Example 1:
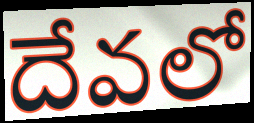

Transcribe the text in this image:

దేవలో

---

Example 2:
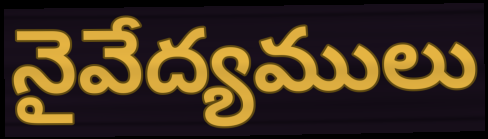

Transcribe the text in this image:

నైవేద్యములు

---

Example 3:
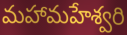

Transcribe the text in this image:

మహామహేశ్వరి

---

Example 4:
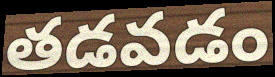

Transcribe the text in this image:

తడవడం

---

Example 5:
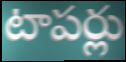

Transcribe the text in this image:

టాపర్లు